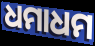
ଧମାଧମ